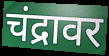
चंद्रावर